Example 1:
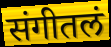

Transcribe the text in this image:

संगीतलं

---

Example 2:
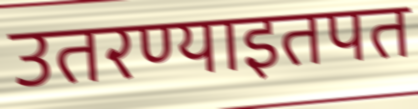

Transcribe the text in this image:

उतरण्याइतपत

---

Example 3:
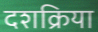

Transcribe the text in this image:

दशक्रिया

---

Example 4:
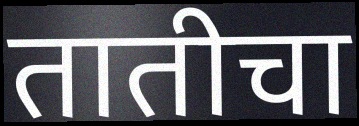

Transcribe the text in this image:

तातीचा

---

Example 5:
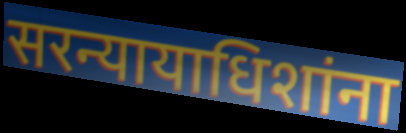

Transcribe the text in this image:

सरन्यायाधिशांना